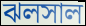
ঝলসাল